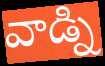
వాడ్ని